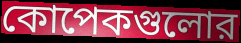
কোপেকগুলোর